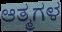
ಆತ್ಮಗಳ